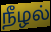
நீழல்